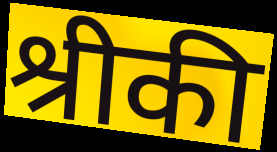
श्रीकी